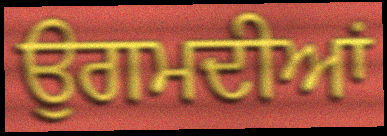
ਉਗਮਦੀਆਂ